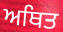
ਅਥਿਤ